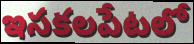
ఇసకలపేటలో